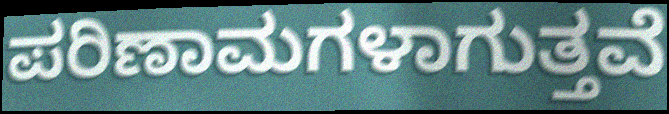
ಪರಿಣಾಮಗಳಾಗುತ್ತವೆ